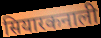
सियारकनाली